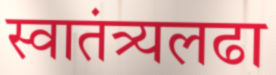
स्वातंत्र्यलढा